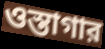
ওস্তাগার